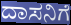
ದಾಸನಿಗೆ